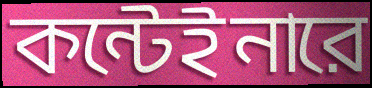
কন্টেইনারে